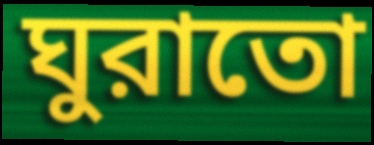
ঘুরাতো